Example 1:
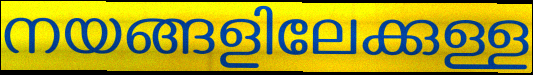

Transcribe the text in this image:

നയങ്ങളിലേക്കുള്ള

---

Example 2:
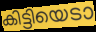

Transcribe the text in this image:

കിട്ടിയെടാ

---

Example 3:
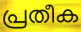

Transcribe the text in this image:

പ്രതീക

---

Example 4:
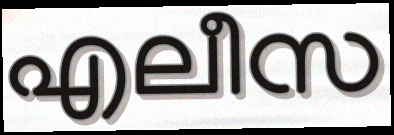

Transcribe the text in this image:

എലീസ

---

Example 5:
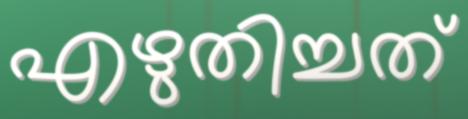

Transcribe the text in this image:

എഴുതിച്ചത്